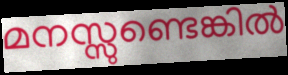
മനസ്സുണ്ടെങ്കിൽ